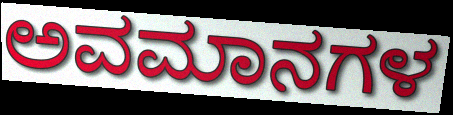
ಅವಮಾನಗಳ